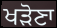
ਖੜੋਣਾ